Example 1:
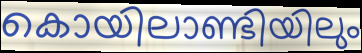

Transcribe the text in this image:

കൊയിലാണ്ടിയിലും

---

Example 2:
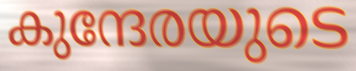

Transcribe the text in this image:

കുന്ദേരയുടെ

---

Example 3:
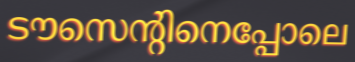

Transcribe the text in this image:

ടൗസെന്റിനെപ്പോലെ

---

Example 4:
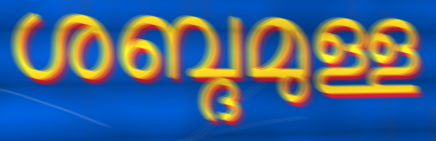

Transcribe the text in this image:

ശബ്ദമുള്ള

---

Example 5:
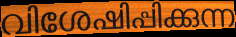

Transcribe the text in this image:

വിശേഷിപ്പിക്കുന്ന